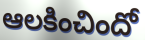
ఆలకించిందో